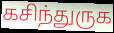
கசிந்துருக